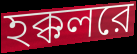
হক্কলরে